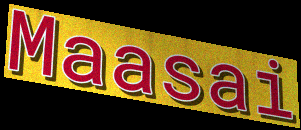
Maasai